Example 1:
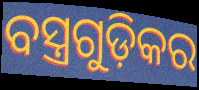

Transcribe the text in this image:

ବସ୍ତ୍ରଗୁଡ଼ିକର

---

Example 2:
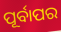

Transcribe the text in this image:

ପୂର୍ବାପର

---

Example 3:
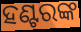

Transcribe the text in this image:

ହଣ୍ଟରଙ୍କ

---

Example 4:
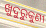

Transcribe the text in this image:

ଖୁଦୁରୁକୁଣୀ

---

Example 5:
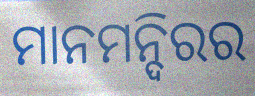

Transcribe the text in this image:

ମାନମନ୍ଦିରର